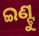
ଇଣ୍ଟୁ